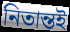
নিতান্তই